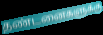
தண்டனைகளுக்கு